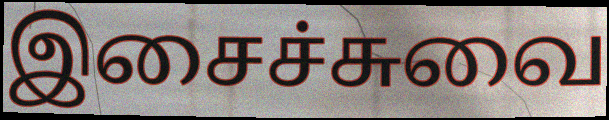
இசைச்சுவை